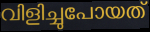
വിളിച്ചുപോയത്